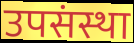
उपसंस्था